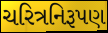
ચરિત્રનિરૂપણ